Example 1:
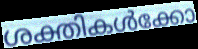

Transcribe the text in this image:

ശക്തികൾക്കോ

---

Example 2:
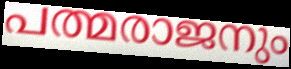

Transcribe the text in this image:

പത്മരാജനും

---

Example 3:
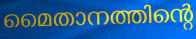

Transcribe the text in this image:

മൈതാനത്തിന്റെ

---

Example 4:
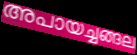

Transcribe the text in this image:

അപായച്ചങ്ങല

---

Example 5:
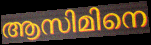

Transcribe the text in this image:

ആസിമിനെ